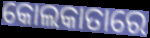
କୋଲକାତାରେ